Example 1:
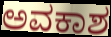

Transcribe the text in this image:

ಅವಕಾಶ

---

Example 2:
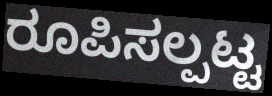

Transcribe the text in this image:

ರೂಪಿಸಲ್ಪಟ್ಟ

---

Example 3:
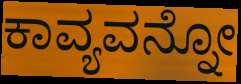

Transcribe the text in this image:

ಕಾವ್ಯವನ್ನೋ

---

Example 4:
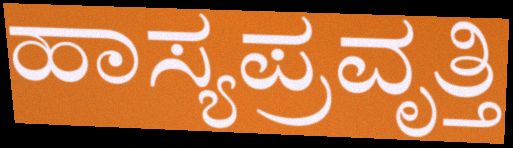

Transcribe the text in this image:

ಹಾಸ್ಯಪ್ರವೃತ್ತಿ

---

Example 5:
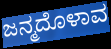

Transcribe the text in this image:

ಜನ್ಮದೊಳಾವ